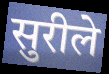
सुरीले